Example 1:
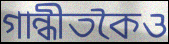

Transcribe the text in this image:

গান্ধীতকৈও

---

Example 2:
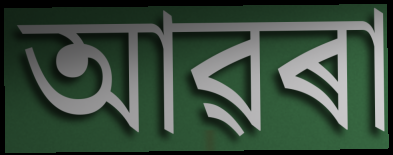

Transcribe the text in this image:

আৱৰা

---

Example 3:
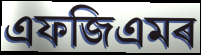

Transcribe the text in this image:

এফজিএমৰ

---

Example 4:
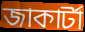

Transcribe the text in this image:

জাকাৰ্টা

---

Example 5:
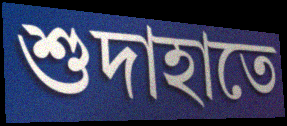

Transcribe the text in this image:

শুদাহাতে